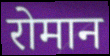
रोमान